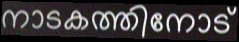
നാടകത്തിനോട്